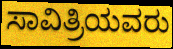
ಸಾವಿತ್ರಿಯವರು